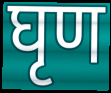
घृण